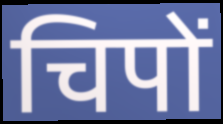
चिपों